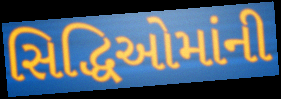
સિદ્ધિઓમાંની